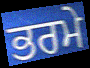
ਭਰਮੇ